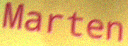
Marten